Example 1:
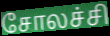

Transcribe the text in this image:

சோலச்சி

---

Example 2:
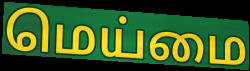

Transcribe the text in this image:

மெய்மை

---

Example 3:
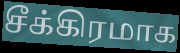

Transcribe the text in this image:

சீக்கிரமாக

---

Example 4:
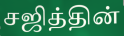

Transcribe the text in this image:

சஜித்தின்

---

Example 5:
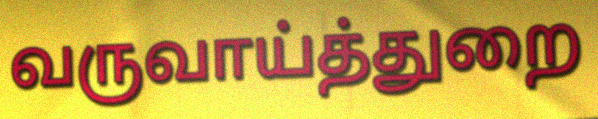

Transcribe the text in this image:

வருவாய்த்துறை